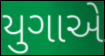
યુગાએ